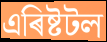
এৰিষ্টটল